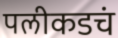
पलीकडचं